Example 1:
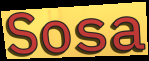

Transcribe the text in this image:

Sosa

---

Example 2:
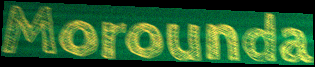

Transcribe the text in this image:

Morounda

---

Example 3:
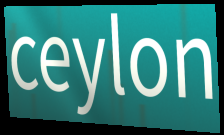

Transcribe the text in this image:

ceylon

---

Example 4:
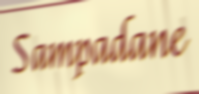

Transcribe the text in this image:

Sampadane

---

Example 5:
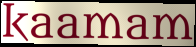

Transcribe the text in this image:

kaamam